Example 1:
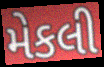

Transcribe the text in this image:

મેકલી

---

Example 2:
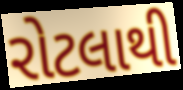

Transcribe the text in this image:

રોટલાથી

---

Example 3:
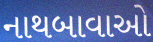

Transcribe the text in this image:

નાથબાવાઓ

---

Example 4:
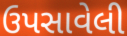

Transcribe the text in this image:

ઉપસાવેલી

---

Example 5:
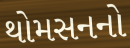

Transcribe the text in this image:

થોમસનનો